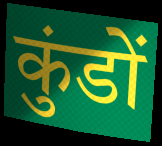
कुंडों